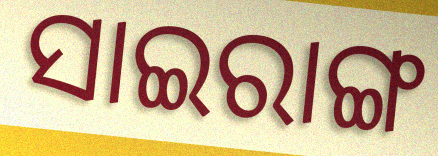
ସାଇରାଙ୍ଗ